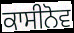
ਕਾਸੀਨੋਵ